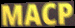
MACP